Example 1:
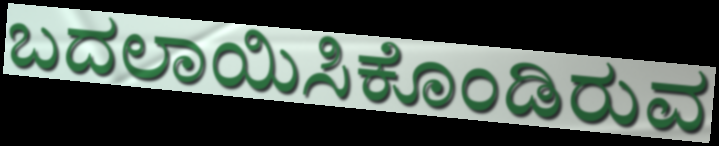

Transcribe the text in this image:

ಬದಲಾಯಿಸಿಕೊಂಡಿರುವ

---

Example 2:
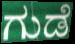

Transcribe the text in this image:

ಗುಡೆ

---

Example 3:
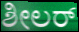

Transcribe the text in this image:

ಶೀಲರ್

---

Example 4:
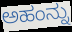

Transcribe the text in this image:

ಅಹಂನ್ನು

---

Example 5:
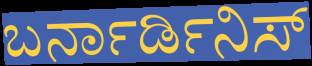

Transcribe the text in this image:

ಬರ್ನಾರ್ಡಿನಿಸ್